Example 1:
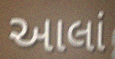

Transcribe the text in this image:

આલાં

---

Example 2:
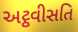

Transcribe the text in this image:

અટ્ઠવીસતિ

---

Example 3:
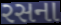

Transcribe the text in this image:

રસના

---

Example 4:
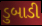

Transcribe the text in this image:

ડુબાડી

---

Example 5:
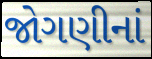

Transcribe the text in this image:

જોગણીનાં